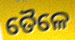
ତୈଳେ